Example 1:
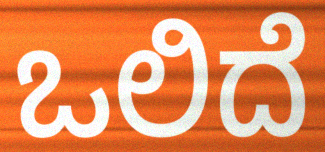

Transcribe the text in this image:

ಒಲಿದೆ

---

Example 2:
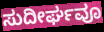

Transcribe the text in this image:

ಸುದೀರ್ಘವೂ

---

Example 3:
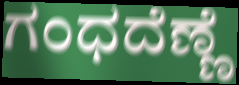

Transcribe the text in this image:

ಗಂಧದೆಣ್ಣೆ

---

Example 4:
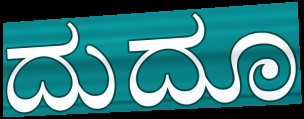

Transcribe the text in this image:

ದುದೂ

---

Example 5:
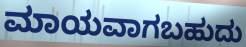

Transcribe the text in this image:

ಮಾಯವಾಗಬಹುದು